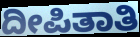
ದೀಪಿತಾತಿ